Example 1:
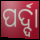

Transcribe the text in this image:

ପର୍ଦ୍ଦା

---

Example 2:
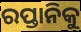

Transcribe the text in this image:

ରପ୍ତାନିକୁ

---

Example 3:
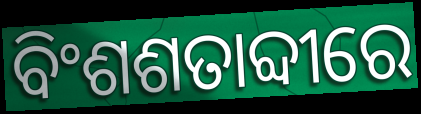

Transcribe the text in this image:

ବିଂଶଶତାବ୍ଦୀରେ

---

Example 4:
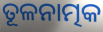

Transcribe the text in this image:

ତୂଳନାତ୍ମକ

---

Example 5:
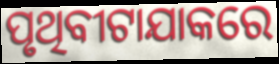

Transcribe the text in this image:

ପୃଥିବୀଟାଯାକରେ